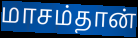
மாசம்தான்